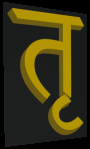
तृ